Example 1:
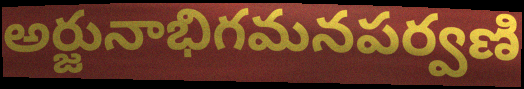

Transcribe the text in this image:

అర్జునాభిగమనపర్వణి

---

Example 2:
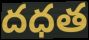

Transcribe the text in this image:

దధత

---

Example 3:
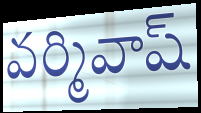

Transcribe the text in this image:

వర్మివాష్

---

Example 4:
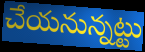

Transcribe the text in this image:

చేయనున్నట్టు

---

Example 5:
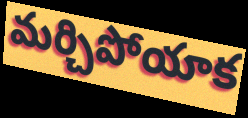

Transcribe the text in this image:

మర్చిపోయాక